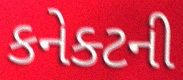
કનેક્ટની